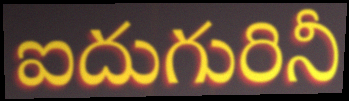
ఐదుగురినీ